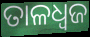
ତାଳଧ୍ୱଜ